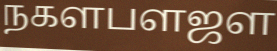
நகளபளஜள